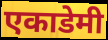
एकाडेमी